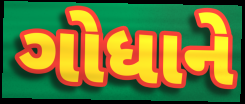
ગોધાને